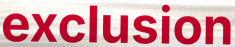
exclusion